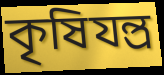
কৃষিযন্ত্র